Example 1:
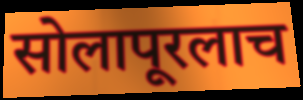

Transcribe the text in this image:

सोलापूरलाच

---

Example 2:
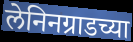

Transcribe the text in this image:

लेनिनग्राडच्या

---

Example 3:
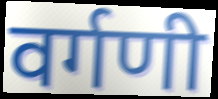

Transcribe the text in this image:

वर्गणी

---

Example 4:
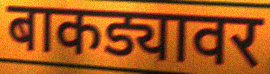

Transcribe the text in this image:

बाकड्यावर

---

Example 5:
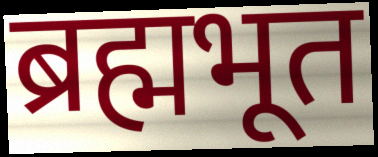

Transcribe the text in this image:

ब्रह्मभूत